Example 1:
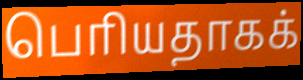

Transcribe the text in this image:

பெரியதாகக்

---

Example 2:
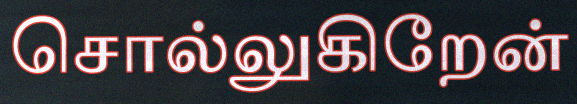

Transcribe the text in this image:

சொல்லுகிறேன்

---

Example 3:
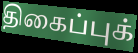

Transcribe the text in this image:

திகைப்புக்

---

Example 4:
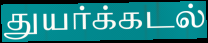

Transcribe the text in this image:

துயர்க்கடல்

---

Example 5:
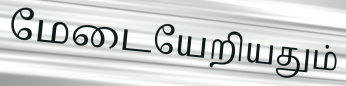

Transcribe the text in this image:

மேடையேறியதும்